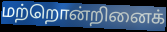
மற்றொன்றினைக்